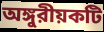
অঙ্গুরীয়কটি